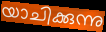
യാചിക്കുന്നു